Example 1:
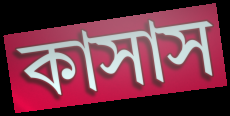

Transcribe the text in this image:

কাসাস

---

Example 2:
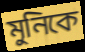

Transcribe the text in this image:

মুনিকে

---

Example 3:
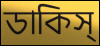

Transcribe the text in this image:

ডাকিস্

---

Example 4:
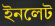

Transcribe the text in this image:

ইনলেট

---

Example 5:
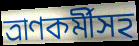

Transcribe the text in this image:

ত্রাণকর্মীসহ